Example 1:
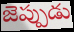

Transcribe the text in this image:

జెప్పుడు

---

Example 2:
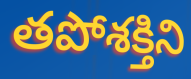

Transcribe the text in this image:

తపోశక్తిని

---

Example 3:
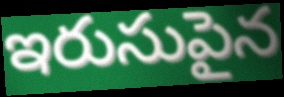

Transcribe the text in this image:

ఇరుసుపైన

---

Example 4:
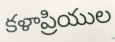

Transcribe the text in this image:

కళాప్రియుల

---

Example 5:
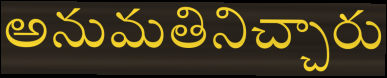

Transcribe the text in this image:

అనుమతినిచ్చారు